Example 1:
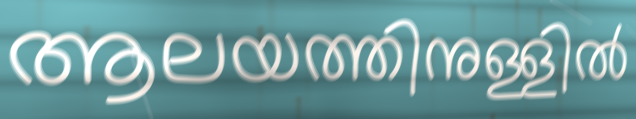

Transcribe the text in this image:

ആലയത്തിനുള്ളിൽ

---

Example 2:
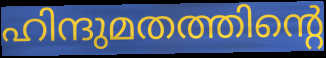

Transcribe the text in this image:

ഹിന്ദുമതത്തിന്റെ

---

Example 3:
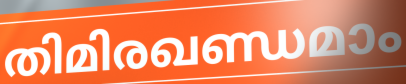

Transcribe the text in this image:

തിമിരഖണ്ഡമാം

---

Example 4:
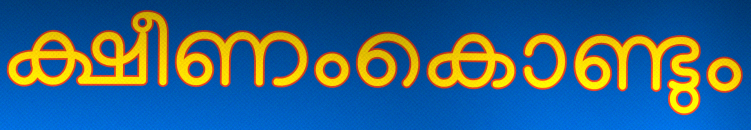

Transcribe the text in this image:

ക്ഷീണംകൊണ്ടും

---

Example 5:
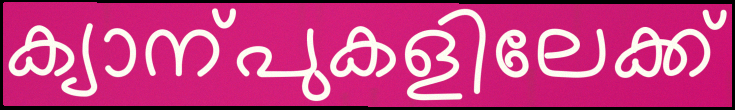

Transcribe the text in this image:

ക്യാന്പുകളിലേക്ക്